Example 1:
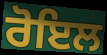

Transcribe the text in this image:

ਰੋਇਲ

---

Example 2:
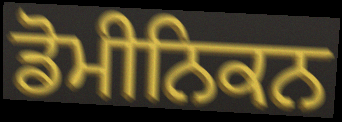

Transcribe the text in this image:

ਡੋਮੀਨਿਕਨ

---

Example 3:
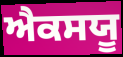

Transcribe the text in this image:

ਐਕਸਯੂ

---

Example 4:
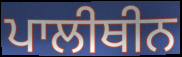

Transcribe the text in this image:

ਪਾਲੀਥੀਨ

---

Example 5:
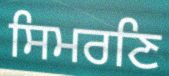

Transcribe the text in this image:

ਸਿਮਰਣਿ